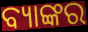
ବ୍ୟାଙ୍କର